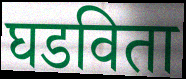
घडविता